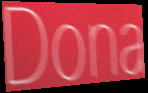
Dona